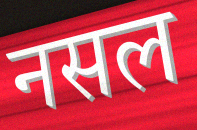
नसल